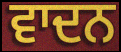
ਵਾਦਨ